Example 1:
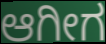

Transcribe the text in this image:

ಆಗೀಗ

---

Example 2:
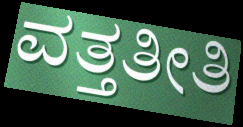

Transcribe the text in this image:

ವತ್ತತೀತಿ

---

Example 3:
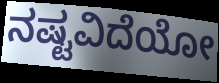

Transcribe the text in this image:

ನಷ್ಟವಿದೆಯೋ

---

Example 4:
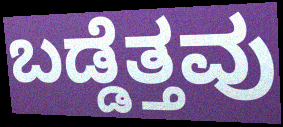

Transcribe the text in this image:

ಬಡ್ಡೆತ್ತವು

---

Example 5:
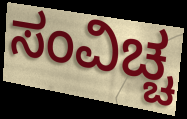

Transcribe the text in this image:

ಸಂವಿಚ್ಚ